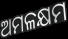
ଅମଳକ୍ଷମ